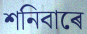
শনিবাৰে